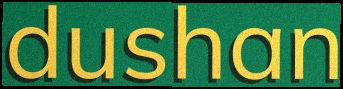
dushan